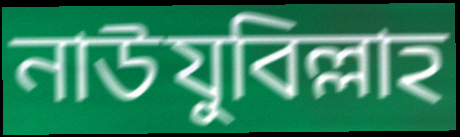
নাউযুবিল্লাহ